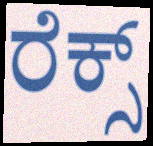
ರೆಕ್ಸ್